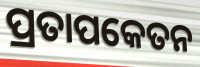
ପ୍ରତାପକେତନ